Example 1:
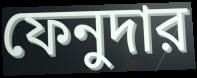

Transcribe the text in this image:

ফেনুদার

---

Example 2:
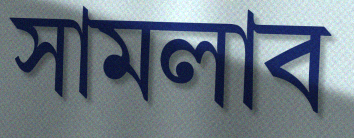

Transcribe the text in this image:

সামলাব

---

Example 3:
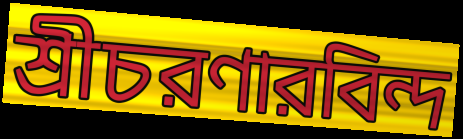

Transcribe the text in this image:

শ্রীচরণারবিন্দ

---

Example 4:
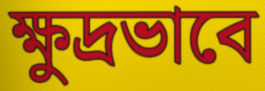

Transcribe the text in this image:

ক্ষুদ্রভাবে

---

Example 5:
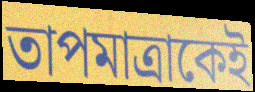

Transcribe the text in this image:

তাপমাত্রাকেই